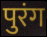
पुरंग